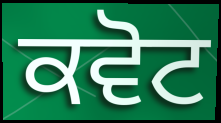
ਕਵੋਟ